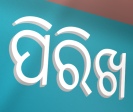
ପିରିଖ